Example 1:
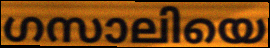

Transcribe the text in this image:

ഗസാലിയെ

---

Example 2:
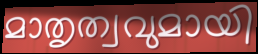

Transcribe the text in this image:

മാതൃത്വവുമായി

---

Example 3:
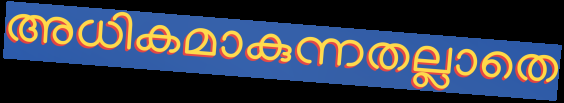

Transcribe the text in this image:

അധികമാകുന്നതല്ലാതെ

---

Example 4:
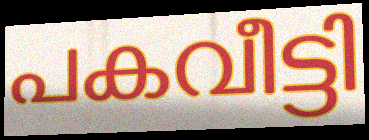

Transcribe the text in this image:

പകവീട്ടി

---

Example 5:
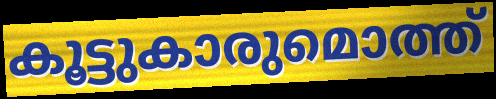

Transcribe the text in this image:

കൂട്ടുകാരുമൊത്ത്